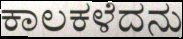
ಕಾಲಕಳೆದನು